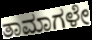
ತಾಮಾಗಳೇ